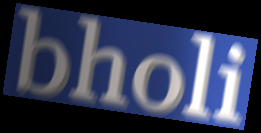
bholi